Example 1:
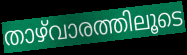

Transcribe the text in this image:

താഴ്‌വാരത്തിലൂടെ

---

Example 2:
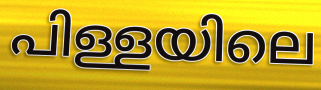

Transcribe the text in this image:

പിള്ളയിലെ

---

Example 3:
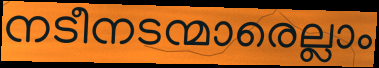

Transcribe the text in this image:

നടീനടന്മാരെല്ലാം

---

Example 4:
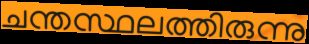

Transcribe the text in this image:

ചന്തസ്ഥലത്തിരുന്നു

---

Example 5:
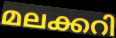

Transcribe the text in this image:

മലക്കറി